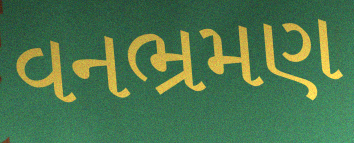
વનભ્રમણ